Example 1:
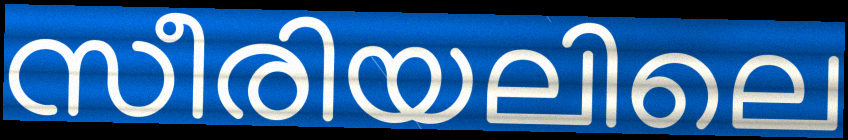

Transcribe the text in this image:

സീരിയലിലെ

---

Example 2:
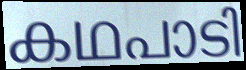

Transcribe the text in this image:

കഥപാടി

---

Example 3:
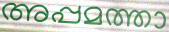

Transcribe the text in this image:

അപ്പമത്താ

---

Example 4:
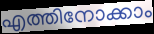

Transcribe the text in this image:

എത്തിനോക്കാം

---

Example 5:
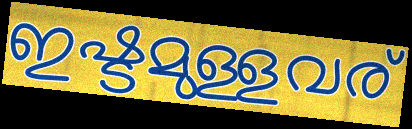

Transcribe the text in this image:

ഇഷ്ടമുള്ളവര്